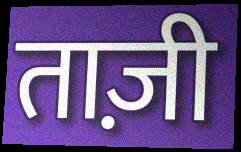
ताज़ी